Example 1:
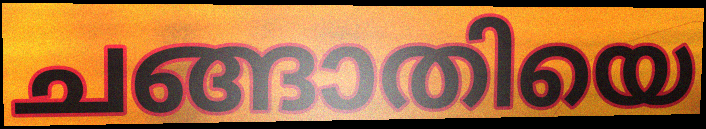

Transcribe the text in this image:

ചങ്ങാതിയെ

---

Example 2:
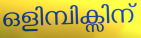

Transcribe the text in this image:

ഒളിമ്പിക്സിന്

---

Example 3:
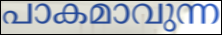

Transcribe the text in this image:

പാകമാവുന്ന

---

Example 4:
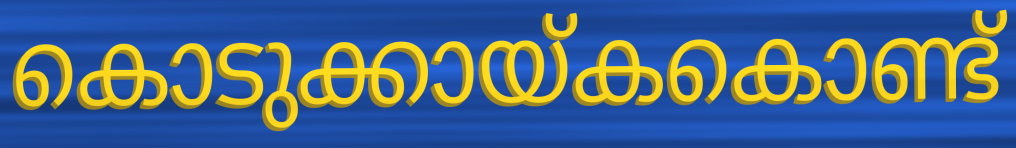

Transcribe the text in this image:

കൊടുക്കായ്കകൊണ്ട്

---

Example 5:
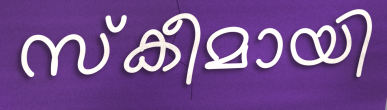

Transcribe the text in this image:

സ്കീമായി